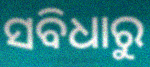
ସବିଧାରୁ